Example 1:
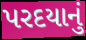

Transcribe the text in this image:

પરદયાનું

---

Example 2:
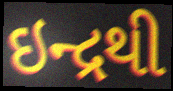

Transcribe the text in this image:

ઇન્દ્રથી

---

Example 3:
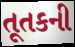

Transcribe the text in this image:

તૂતકની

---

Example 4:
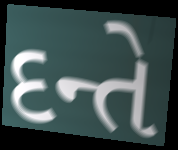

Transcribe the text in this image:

દન્તે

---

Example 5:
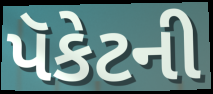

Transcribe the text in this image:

પૅકેટની